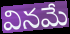
వినమే